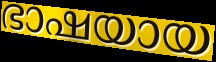
ഭാഷയായ